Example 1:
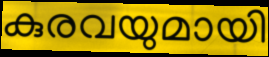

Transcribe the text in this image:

കുരവയുമായി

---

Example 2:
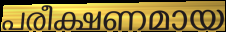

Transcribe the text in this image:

പരീക്ഷണമായ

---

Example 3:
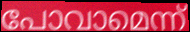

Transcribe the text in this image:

പോവാമെന്ന്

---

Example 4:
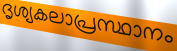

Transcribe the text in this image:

ദൃശ്യകലാപ്രസ്ഥാനം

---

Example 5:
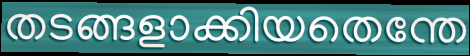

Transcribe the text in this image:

തടങ്ങളാക്കിയതെന്തേ